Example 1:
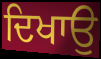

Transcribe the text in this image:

ਦਿਖਾਉ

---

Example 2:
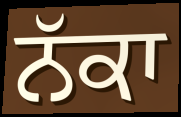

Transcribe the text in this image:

ਨੱਕਾ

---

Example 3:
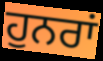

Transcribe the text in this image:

ਹੁਨਰਾਂ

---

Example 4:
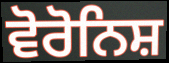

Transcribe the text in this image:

ਵੋਰੋਨਿਸ਼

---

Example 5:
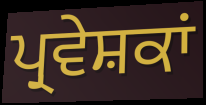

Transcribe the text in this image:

ਪ੍ਰਵੇਸ਼ਕਾਂ